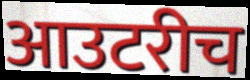
आउटरीच